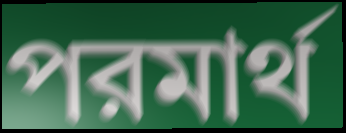
পরমার্থ